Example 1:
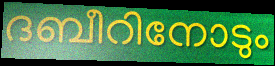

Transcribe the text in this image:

ദബീറിനോടും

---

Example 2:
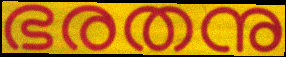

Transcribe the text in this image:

ഭരതനു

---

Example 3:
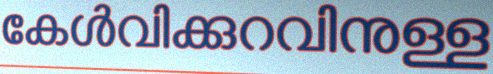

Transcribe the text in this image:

കേൾവിക്കുറവിനുള്ള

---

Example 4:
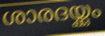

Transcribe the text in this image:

ശാരദയ്ക്കും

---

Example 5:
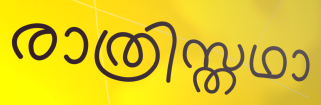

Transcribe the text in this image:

രാത്രിസ്തഥാ